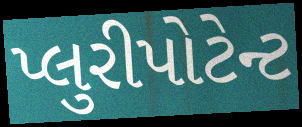
પ્લુરીપોટેન્ટ